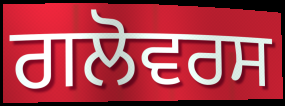
ਗਲੋਵਰਸ